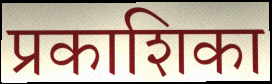
प्रकाशिका